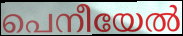
പെനീയേൽ